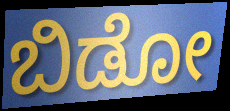
ಬಿಡೋ